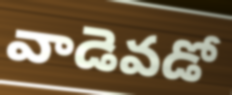
వాడెవడో